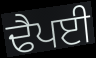
ਢੈਪਈ